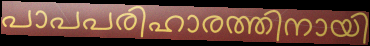
പാപപരിഹാരത്തിനായി